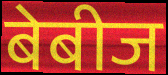
बेबीज